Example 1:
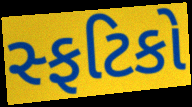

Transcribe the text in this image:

સ્ફટિકો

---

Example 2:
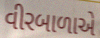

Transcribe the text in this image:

વીરબાળાએ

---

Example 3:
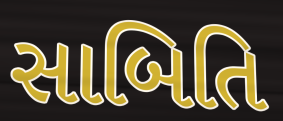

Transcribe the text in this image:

સાબિતિ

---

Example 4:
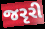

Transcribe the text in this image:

જરૃરી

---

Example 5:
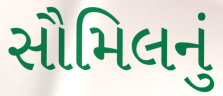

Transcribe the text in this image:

સૌમિલનું